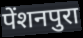
पेंशनपुरा